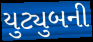
યુટ્યુબની